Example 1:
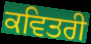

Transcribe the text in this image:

ਕਵਿਤਰੀ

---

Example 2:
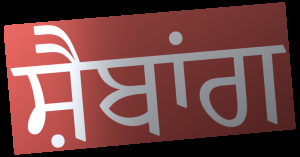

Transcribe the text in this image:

ਸ਼ੈਬਾਂਗ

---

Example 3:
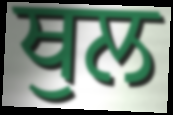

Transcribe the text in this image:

ਥੁਲ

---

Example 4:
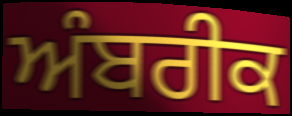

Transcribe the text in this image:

ਅੰਬਰੀਕ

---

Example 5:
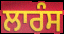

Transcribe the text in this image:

ਲਾਰੰਸ